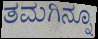
ತಮಗಿನ್ನೂ